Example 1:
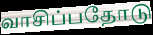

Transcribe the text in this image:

வாசிப்பதோடு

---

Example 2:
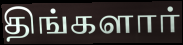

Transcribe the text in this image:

திங்களார்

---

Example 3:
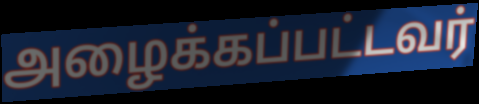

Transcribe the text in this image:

அழைக்கப்பட்டவர்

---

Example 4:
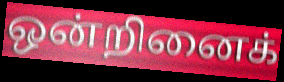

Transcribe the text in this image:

ஒன்றினைக்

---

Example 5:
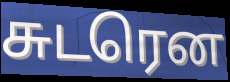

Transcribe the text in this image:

சுடரென